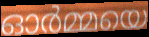
ഓർമ്മയെ